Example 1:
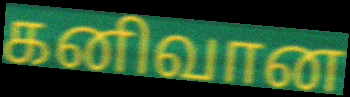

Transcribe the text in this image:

கனிவான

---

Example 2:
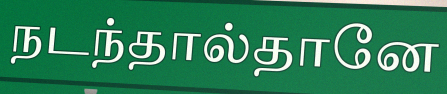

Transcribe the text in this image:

நடந்தால்தானே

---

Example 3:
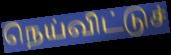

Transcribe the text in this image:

நெய்விட்டுச்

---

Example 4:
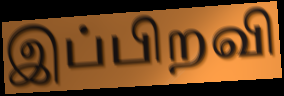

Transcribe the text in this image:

இப்பிறவி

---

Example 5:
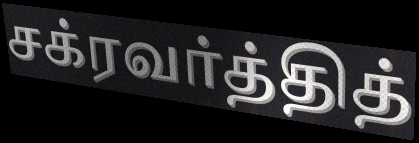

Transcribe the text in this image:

சக்ரவர்த்தித்